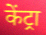
केंट्रा